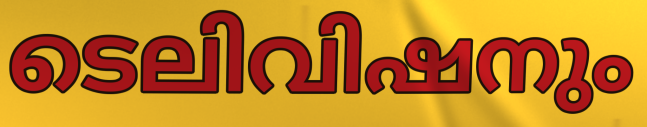
ടെലിവിഷനും